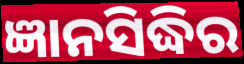
ଜ୍ଞାନସିଦ୍ଧିର